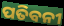
ପତିବନୀ